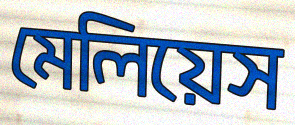
মেলিয়েস